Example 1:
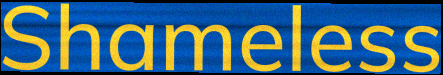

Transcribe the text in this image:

Shameless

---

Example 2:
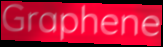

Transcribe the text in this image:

Graphene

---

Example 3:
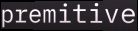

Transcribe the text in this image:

premitive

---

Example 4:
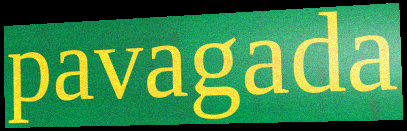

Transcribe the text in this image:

pavagada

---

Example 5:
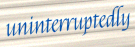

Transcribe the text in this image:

uninterruptedly